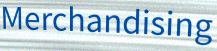
Merchandising